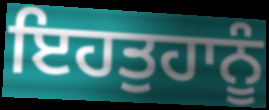
ਇਹਤੁਹਾਨੂੰ